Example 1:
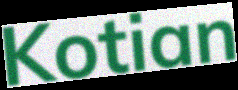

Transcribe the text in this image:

Kotian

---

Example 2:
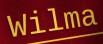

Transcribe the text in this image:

Wilma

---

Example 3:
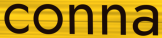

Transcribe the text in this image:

conna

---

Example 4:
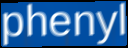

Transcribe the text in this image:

phenyl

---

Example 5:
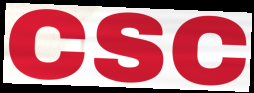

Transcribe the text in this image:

csc